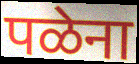
पळेना